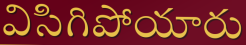
విసిగిపోయారు